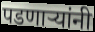
पडणाऱ्यांनी